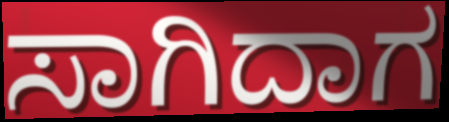
ಸಾಗಿದಾಗ